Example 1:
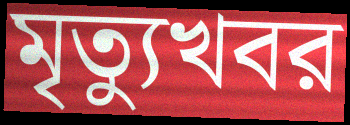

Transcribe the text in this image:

মৃত্যুখবর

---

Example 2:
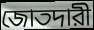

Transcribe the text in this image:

জোতদারী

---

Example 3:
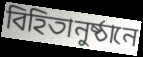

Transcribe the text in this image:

বিহিতানুষ্ঠানে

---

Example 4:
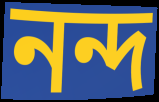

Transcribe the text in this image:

নন্দ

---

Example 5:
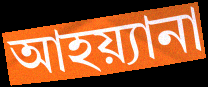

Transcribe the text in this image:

আহয়্যানা